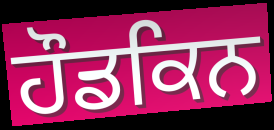
ਹੌਡਕਿਨ